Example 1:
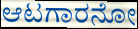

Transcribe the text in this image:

ಆಟಗಾರನೋ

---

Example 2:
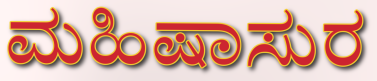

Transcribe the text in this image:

ಮಹಿಷಾಸುರ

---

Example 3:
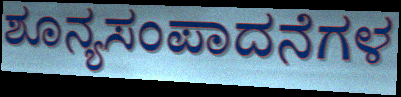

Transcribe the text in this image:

ಶೂನ್ಯಸಂಪಾದನೆಗಳ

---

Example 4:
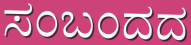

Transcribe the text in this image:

ಸಂಬಂದದ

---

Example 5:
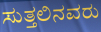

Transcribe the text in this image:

ಸುತ್ತಲಿನವರು